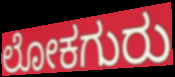
ಲೋಕಗುರು